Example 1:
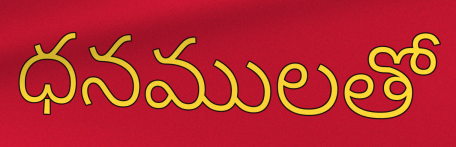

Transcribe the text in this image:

ధనములతో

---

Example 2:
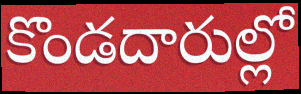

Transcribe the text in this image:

కొండదారుల్లో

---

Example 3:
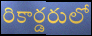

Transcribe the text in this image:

రికార్డరులో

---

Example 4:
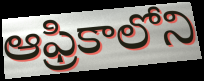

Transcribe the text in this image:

ఆఫ్రికాలోని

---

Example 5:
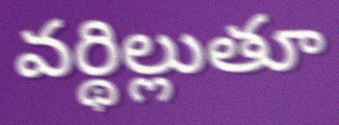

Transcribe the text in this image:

వర్థిల్లుతూ